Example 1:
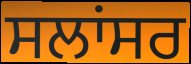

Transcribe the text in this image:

ਸਲਾਂਸਰ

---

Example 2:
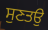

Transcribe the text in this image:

ਸੁਣਤਉ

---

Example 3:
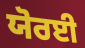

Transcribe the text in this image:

ਯੋਰਈ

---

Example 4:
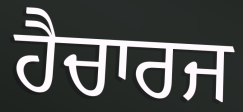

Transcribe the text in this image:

ਹੈਚਾਰਜ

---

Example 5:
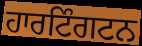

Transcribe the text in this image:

ਹਾਰਟਿੰਗਟਨ